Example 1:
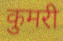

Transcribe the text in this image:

कुमरी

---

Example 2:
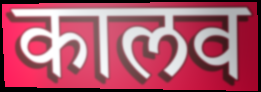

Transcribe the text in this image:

कालव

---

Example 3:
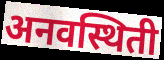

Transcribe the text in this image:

अनवस्थिती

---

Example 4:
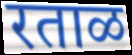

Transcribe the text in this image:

रताळ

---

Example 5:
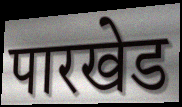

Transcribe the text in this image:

पारखेड